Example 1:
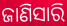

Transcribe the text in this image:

ଜାଣିସାରି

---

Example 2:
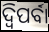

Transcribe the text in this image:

ଦ୍ଵିପର୍ବା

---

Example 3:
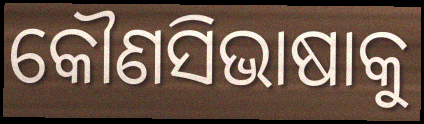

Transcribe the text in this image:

କୌଣସିଭାଷାକୁ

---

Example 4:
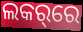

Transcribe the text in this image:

ଲକର୍‌ରେ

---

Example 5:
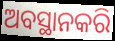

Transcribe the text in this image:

ଅବସ୍ଥାନକରି